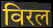
विरल